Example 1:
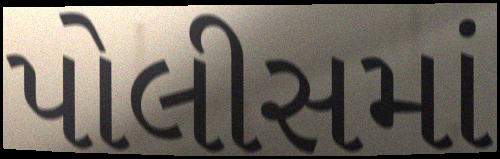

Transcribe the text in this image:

પોલીસમાં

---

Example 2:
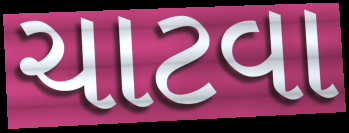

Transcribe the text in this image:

ચાટવા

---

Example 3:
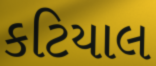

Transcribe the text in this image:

કટિયાલ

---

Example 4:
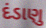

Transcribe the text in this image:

દંડાણુ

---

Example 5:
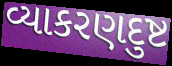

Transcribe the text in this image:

વ્યાકરણદુષ્ટ